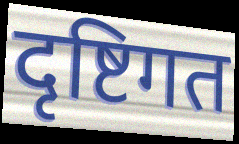
दृष्टिगत